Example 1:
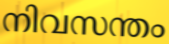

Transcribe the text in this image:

നിവസന്തം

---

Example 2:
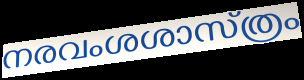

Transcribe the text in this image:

നരവംശശാസ്‌ത്രം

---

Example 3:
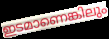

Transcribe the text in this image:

ഇടമാണെങ്കിലും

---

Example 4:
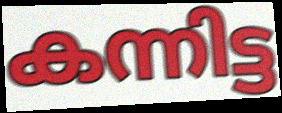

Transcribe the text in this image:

കന്നിട്ട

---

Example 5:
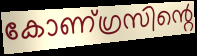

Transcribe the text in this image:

കോണ്ഗ്രസിന്റെ